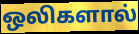
ஒலிகளால்